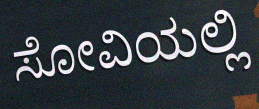
ಸೋವಿಯಲ್ಲಿ